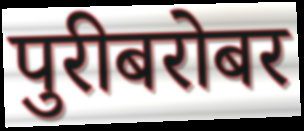
पुरीबरोबर